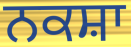
ਨਕਸ਼ਾ